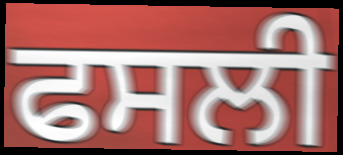
ਫਸਲੀ